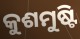
କୁଶମୁଷ୍ଟି